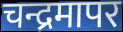
चन्द्रमापर